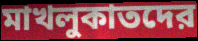
মাখলুকাতদের